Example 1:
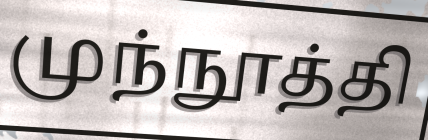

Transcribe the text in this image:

முந்நூத்தி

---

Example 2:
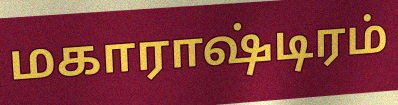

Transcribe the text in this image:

மகாராஷ்டிரம்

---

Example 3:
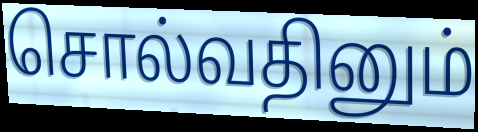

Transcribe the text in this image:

சொல்வதினும்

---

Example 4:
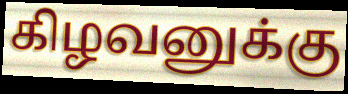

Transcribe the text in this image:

கிழவனுக்கு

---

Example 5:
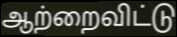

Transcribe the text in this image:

ஆற்றைவிட்டு